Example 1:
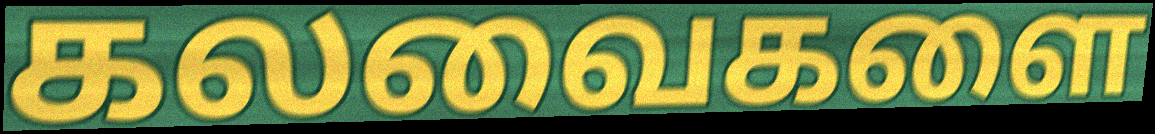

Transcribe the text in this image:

கலவைகளை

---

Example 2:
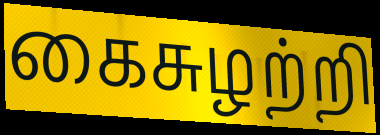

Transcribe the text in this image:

கைசுழற்றி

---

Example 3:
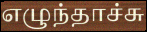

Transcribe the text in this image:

எழுந்தாச்சு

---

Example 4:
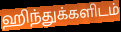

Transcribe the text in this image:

ஹிந்துக்களிடம்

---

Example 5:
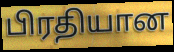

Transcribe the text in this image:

பிரதியான